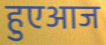
हुएआज